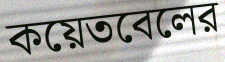
কয়েতবেলের